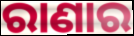
ରାଣାର